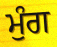
ਮੁੰਗ